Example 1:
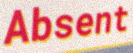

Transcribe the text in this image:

Absent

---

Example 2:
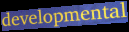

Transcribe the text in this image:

developmental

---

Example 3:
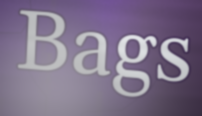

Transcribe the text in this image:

Bags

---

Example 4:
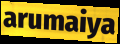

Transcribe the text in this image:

arumaiya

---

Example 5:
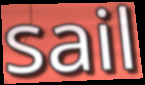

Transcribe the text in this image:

sail